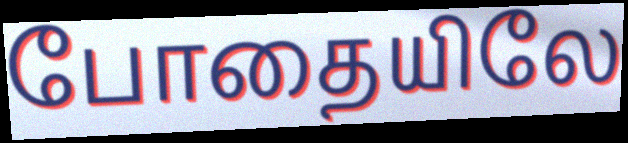
போதையிலே